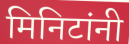
मिनिटांनी